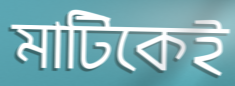
মাটিকেই